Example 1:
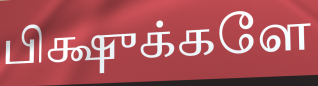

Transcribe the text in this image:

பிக்ஷுக்களே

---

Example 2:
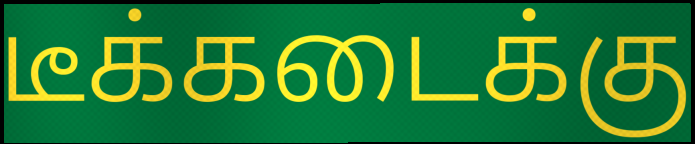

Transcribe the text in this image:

டீக்கடைக்கு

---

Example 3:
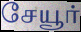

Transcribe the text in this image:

சேயூர்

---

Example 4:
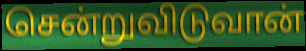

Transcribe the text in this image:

சென்றுவிடுவான்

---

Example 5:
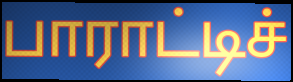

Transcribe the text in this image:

பாராட்டிச்